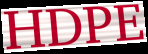
HDPE